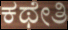
ಕಥೇತಿ